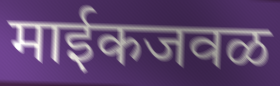
माईकजवळ